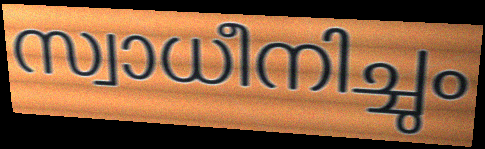
സ്വാധീനിച്ചും